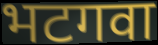
भटगवा